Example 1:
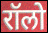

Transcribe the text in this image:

रॉलो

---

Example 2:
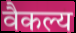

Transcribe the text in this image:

वैकल्य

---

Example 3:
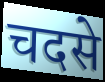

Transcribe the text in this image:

चदसे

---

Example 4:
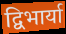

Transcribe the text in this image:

द्विभार्या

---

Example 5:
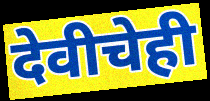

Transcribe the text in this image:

देवीचेही